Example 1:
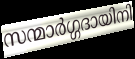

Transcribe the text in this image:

സന്മാർഗ്ഗദായിനി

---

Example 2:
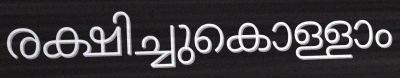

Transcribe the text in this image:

രക്ഷിച്ചുകൊള്ളാം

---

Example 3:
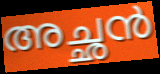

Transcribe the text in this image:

അച്ഛൻ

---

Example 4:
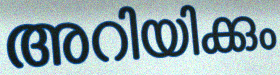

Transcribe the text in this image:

അറിയിക്കും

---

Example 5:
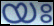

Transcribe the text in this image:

യഃ